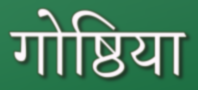
गोष्ठिया